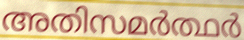
അതിസമർത്ഥർ